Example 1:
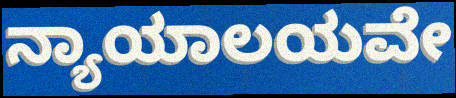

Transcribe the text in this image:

ನ್ಯಾಯಾಲಯವೇ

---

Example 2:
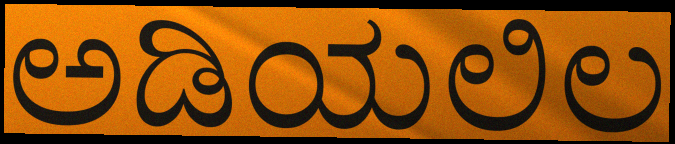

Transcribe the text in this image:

ಅಡಿಯಲಿಲ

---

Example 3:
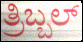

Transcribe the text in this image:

ತ್ರಿಬ್ಬಲ್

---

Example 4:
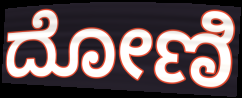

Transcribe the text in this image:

ದೋಣಿ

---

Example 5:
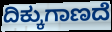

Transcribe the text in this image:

ದಿಕ್ಕುಗಾಣದೆ